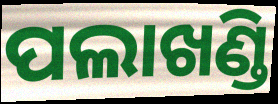
ପଲାଖଣ୍ଡି